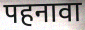
पहनावा